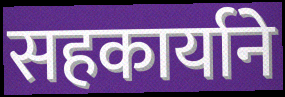
सहकार्याने